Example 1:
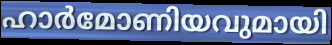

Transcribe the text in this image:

ഹാർമോണിയവുമായി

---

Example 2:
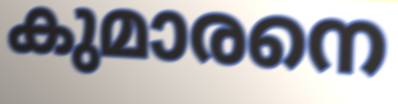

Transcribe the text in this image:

കുമാരനെ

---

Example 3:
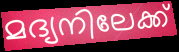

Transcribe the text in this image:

മദ്യനിലേക്ക്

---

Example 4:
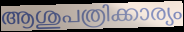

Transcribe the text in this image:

ആശുപത്രിക്കാര്യം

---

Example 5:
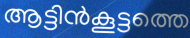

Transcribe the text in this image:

ആട്ടിൻകൂട്ടത്തെ